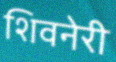
शिवनेरी